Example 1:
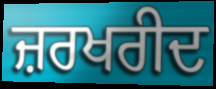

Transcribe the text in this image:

ਜ਼ਰਖਰੀਦ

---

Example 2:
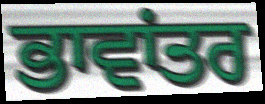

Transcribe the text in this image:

ਭਾਵਾਂਤਰ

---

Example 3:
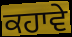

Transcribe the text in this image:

ਕਹਾਵੇ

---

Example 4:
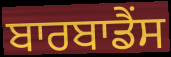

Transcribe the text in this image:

ਬਾਰਬਾਡੈਂਸ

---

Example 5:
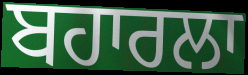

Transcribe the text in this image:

ਬਹਾਰਲਾ